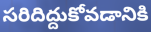
సరిదిద్దుకోవడానికి